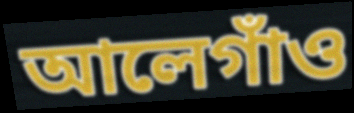
আলেগাঁও